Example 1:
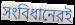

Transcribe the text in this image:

সংবিধানেরই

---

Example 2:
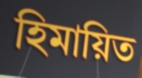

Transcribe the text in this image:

হিমায়িত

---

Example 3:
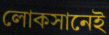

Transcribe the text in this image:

লোকসানেই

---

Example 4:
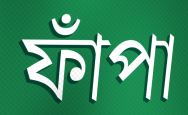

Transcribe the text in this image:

ফাঁপা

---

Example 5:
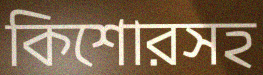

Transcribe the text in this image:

কিশোরসহ